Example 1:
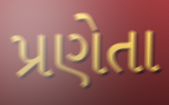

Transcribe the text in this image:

પ્રણેતા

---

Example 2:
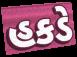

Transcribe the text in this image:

હકડે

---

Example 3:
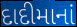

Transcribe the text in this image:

દાદીમાનાં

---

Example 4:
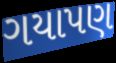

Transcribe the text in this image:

ગયાપણ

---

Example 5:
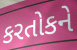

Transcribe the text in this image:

કરતોકને